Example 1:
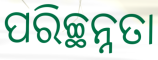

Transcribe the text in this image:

ପରିଚ୍ଛନ୍ନତା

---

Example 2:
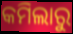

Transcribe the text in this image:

କମିଲାରୁ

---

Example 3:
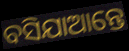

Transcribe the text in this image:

ବସିଯାଆନ୍ତେ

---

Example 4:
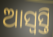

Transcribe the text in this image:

ଆସ୍ୱସ୍ତି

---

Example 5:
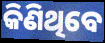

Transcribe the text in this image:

କିଣିଥିବେ